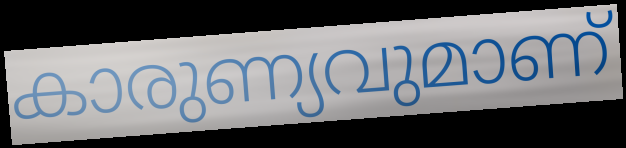
കാരുണ്യവുമാണ്